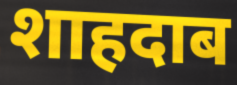
शाहदाब